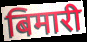
बिमारी